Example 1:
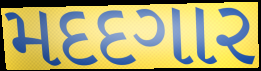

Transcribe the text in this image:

મદદગાર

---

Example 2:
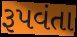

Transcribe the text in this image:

રૂપવંતા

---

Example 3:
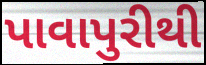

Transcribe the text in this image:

પાવાપુરીથી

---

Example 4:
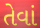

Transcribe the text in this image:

તેવાં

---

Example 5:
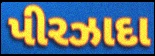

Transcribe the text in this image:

પીરઝાદા